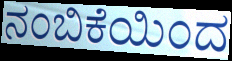
ನಂಬಿಕೆಯಿಂದ